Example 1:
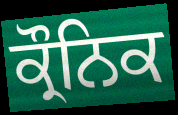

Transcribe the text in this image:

ਕ੍ਰੌਨਿਕ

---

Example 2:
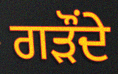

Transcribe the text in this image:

ਗੜੌਂਦੇ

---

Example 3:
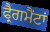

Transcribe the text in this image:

ਫ੍ਰੈਗਮੈਂਟਾਂ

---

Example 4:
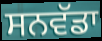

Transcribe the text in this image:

ਸਨਵੱਡਾ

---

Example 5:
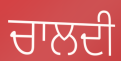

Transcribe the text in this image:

ਚਾਲਦੀ